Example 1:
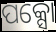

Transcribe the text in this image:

ପକ୍ସୋ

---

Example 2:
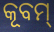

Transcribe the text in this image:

କୂବମ୍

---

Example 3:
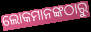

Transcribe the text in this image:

ଲୋକମାନଙ୍କଠାରୁ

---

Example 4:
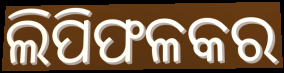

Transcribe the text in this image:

ଲିପିଫଳକର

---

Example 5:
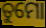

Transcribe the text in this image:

ତୁମୋ